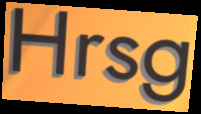
Hrsg